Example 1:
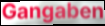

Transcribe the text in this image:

Gangaben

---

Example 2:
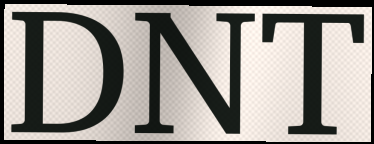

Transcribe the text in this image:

DNT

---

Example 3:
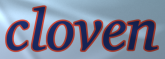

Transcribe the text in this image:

cloven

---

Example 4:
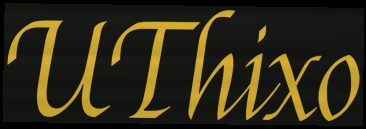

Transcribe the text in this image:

UThixo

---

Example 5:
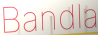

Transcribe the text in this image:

Bandla